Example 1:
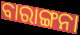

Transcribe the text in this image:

ବାରାଙ୍ଗନା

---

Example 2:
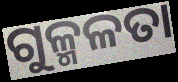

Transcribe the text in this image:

ଗୁଳ୍ମଳତା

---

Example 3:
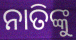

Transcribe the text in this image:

ନାତିଙ୍କୁ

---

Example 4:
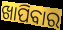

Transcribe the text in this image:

ଖାପିବାର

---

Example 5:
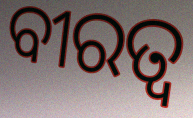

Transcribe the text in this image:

ବୀରତ୍ଵ